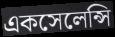
একসেলেন্সি